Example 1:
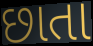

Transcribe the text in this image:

છાતા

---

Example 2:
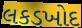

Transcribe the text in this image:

લકડખોદ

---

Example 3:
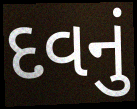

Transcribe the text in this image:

દવનું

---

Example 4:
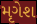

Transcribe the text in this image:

મૃગેશ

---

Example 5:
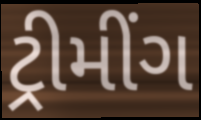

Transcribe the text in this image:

ટ્રીમીંગ